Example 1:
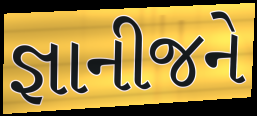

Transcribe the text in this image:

જ્ઞાનીજને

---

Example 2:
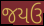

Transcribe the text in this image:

જયઉ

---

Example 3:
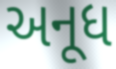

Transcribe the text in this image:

અનૂધ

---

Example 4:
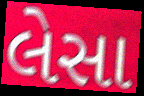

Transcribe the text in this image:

લેસા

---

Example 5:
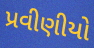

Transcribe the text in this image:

પ્રવીણીયો